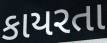
કાયરતા